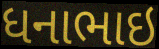
ધનાભાઇ